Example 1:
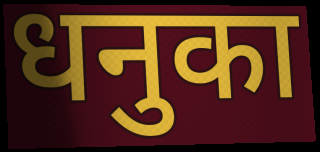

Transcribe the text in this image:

धनुका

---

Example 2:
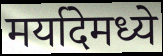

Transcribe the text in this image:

मर्यादेमध्ये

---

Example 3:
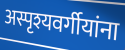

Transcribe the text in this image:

अस्पृश्यवर्गीयांना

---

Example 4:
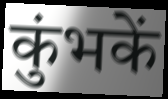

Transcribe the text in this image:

कुंभकें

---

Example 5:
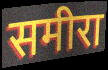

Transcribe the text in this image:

समीरा